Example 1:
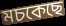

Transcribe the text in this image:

মচকেছে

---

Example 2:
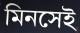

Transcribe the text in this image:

মিনসেই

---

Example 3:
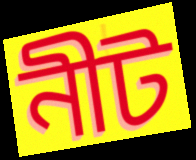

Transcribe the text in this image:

নীট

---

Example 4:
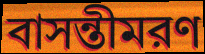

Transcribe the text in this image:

বাসন্তীমরণ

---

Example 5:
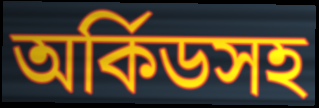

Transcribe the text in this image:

অর্কিডসহ